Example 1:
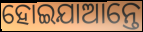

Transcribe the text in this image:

ହୋଇଯାଆନ୍ତେ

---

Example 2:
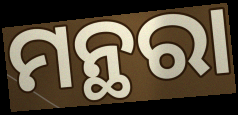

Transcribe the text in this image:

ମନ୍ଥରା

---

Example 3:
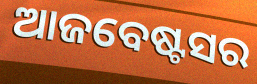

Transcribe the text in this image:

ଆଜବେଷ୍ଟସର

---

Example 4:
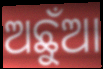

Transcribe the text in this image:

ଅଛୁଁଆ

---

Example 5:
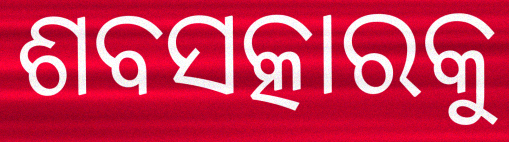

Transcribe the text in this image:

ଶବସତ୍କାରକୁ